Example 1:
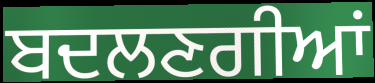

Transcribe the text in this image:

ਬਦਲਣਗੀਆਂ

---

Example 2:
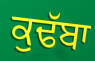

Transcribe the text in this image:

ਕੁਢੱਬਾ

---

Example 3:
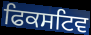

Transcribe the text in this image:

ਫਿਕਸਟਿਵ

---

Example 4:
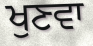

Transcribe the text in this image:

ਖੁਣਵਾ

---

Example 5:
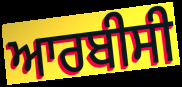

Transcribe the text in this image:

ਆਰਬੀਸੀ